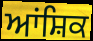
ਆਂਸ਼ਿਕ